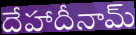
దేహాదీనామ్